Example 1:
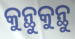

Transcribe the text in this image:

କୁନ୍ଥୁକୁନ୍ଥୁ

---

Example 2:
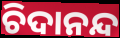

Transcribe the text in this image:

ଚିଦାନନ୍ଦ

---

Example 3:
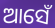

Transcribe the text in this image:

ଆସେଁ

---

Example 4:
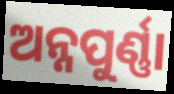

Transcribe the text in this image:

ଅନ୍ନପୁର୍ଣ୍ଣା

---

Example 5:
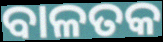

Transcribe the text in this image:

ବାଳତକ